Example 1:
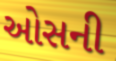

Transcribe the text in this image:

ઓસની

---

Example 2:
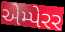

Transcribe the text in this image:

એમ્પેરર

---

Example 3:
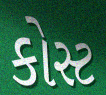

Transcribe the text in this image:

કોસ્ટ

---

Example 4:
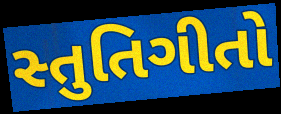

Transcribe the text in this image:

સ્તુતિગીતો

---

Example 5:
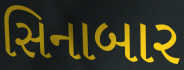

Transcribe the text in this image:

સિનાબાર